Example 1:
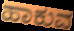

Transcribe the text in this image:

ಹಾಕುವ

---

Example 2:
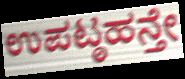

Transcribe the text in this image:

ಉಪಟ್ಠಹನ್ತೇ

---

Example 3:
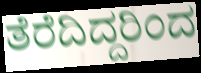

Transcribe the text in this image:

ತೆರೆದಿದ್ದರಿಂದ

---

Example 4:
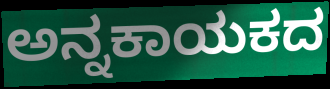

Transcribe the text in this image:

ಅನ್ನಕಾಯಕದ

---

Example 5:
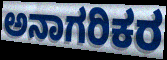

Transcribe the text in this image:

ಅನಾಗರಿಕರ